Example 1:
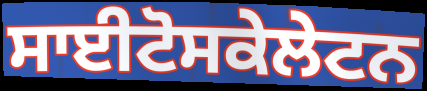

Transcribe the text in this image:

ਸਾਈਟੋਸਕੇਲੇਟਨ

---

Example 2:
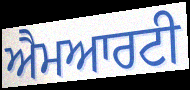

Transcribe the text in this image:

ਐਮਆਰਟੀ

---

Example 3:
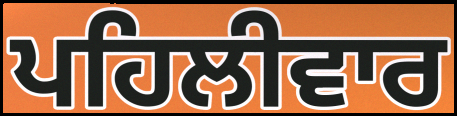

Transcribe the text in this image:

ਪਹਿਲੀਵਾਰ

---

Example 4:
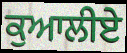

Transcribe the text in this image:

ਕੁਆਲੀਏ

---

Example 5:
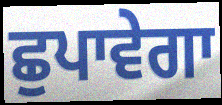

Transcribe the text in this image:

ਛੁਪਾਵੇਗਾ